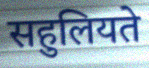
सहुलियते